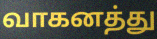
வாகனத்து